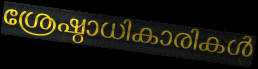
ശ്രേഷ്ഠാധികാരികൾ